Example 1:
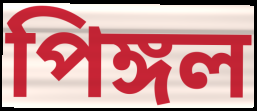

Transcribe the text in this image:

পিঙ্গল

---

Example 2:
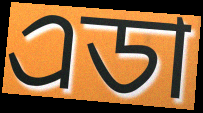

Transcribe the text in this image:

এডা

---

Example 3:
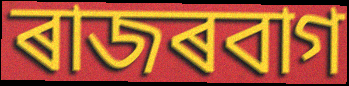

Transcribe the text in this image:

ৰাজৰবাগ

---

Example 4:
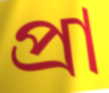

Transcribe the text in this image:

প্ৰা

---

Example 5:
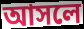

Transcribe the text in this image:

আসলে